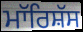
ਮਾੱਰਿਸ਼ੱਸ